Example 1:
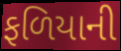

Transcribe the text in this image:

ફળિયાની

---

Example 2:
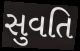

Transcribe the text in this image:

સુવતિ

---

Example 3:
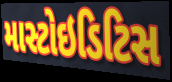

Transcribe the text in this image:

માસ્ટોઇડિટિસ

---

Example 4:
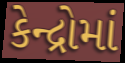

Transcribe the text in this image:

કેન્દ્રોમાં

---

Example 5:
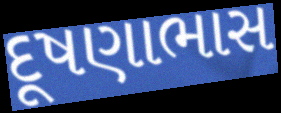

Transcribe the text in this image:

દૂષણાભાસ